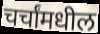
चर्चांमधील